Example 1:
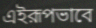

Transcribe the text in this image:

এইরূপভাবে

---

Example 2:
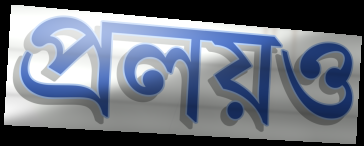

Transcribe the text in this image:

প্রলয়ও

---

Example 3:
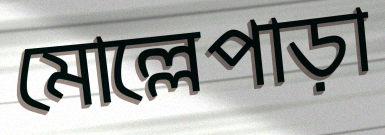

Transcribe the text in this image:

মোল্লেপাড়া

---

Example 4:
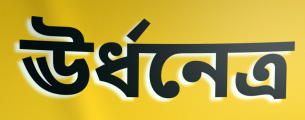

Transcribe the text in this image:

ঊর্ধনেত্র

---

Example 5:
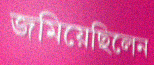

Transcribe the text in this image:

জমিয়েছিলেন